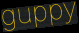
guppy